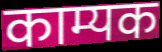
काम्यक